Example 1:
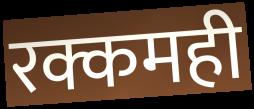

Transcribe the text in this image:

रक्कमही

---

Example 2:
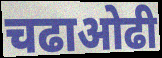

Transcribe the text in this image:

चढाओढी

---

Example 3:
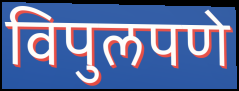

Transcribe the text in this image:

विपुलपणे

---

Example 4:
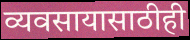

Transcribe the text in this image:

व्यवसायासाठीही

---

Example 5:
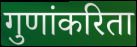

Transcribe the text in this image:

गुणांकरिता